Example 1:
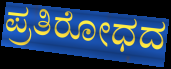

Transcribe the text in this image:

ಪ್ರತಿರೋಧದ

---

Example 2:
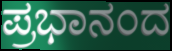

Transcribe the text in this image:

ಪ್ರಭಾನಂದ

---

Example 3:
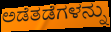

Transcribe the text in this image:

ಅಡೆತಡೆಗಳನ್ನು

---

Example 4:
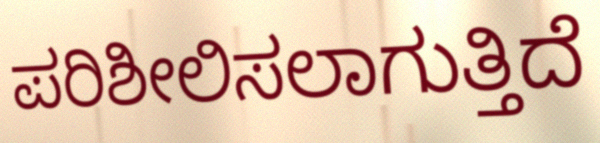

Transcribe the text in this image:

ಪರಿಶೀಲಿಸಲಾಗುತ್ತಿದೆ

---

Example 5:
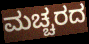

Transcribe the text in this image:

ಮಚ್ಚರದ